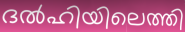
ദൽഹിയിലെത്തി